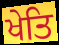
ਖੇਤਿ